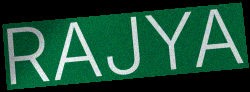
RAJYA